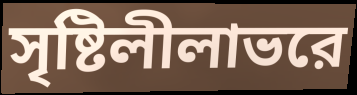
সৃষ্টিলীলাভরে